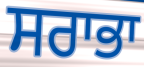
ਸਰਾਭਾ